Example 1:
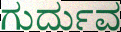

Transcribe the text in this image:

ಗುರ್ದುವ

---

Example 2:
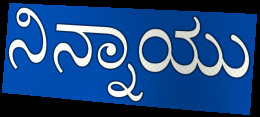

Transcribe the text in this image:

ನಿನ್ನಾಯು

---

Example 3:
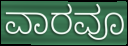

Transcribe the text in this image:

ವಾರವೂ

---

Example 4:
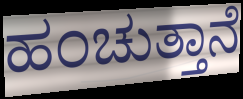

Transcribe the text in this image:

ಹಂಚುತ್ತಾನೆ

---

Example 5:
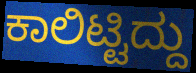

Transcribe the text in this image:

ಕಾಲಿಟ್ಟಿದ್ದು